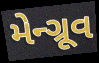
મેન્ગ્રૂવ